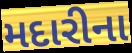
મદારીના